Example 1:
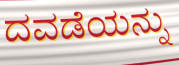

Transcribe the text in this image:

ದವಡೆಯನ್ನು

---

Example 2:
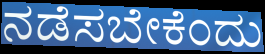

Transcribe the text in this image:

ನಡೆಸಬೇಕೆಂದು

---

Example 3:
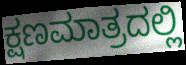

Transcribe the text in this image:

ಕ್ಷಣಮಾತ್ರದಲ್ಲಿ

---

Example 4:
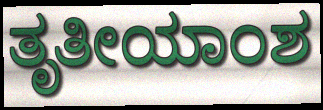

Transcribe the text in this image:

ತೃತೀಯಾಂಶ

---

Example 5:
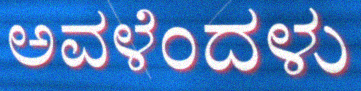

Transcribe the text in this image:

ಅವಳೆಂದಳು